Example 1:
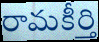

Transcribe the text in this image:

రామకీర్తి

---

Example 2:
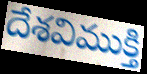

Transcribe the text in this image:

దేశవిముక్తి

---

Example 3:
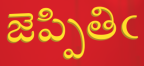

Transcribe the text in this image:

జెప్పితిఁ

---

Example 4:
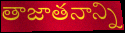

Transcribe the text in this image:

తాజాతనాన్ని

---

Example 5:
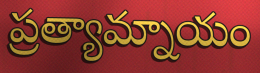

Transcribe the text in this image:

ప్రత్యామ్నాయం